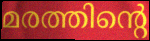
മരത്തിന്റെ